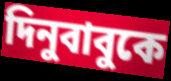
দিনুবাবুকে